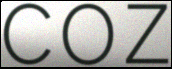
coz